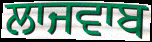
ਲਾਜਵਾਬ